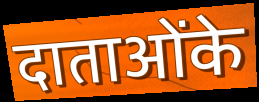
दाताओंके